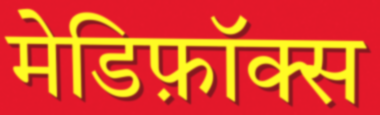
मेडिफ़ॉक्स